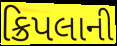
ક્રિપલાની